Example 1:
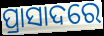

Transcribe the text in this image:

ପ୍ରାସାଦରେ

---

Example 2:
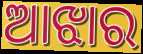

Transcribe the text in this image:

ଆଝାର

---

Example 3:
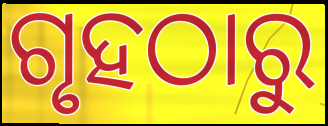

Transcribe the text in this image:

ଗୃହଠାରୁ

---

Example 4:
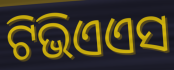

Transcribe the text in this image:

ଟିଭିଏଏସ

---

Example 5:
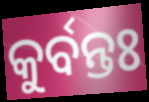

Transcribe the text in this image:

କୁର୍ବନ୍ତଃ